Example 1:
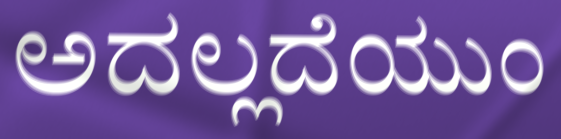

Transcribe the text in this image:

ಅದಲ್ಲದೆಯುಂ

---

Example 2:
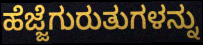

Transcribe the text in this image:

ಹೆಜ್ಜೆಗುರುತುಗಳನ್ನು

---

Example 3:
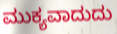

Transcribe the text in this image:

ಮುಕ್ಯವಾದುದು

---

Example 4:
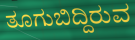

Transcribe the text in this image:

ತೂಗುಬಿದ್ದಿರುವ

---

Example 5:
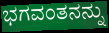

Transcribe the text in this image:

ಭಗವಂತನನ್ನು